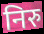
निरु